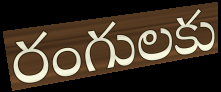
రంగులకు